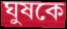
ঘুষকে